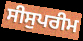
ਸੀਸੁਪਰੀਮ